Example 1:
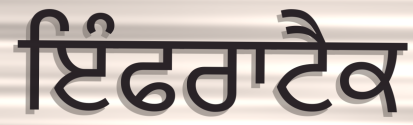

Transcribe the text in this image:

ਇੰਫਰਾਟੈਕ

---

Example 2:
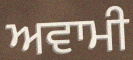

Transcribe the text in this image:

ਅਵਾਮੀ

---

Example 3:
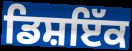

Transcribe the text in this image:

ਡਿਸ਼ਇੱਕ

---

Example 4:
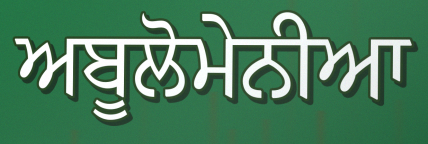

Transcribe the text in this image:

ਅਬੂਲੋਮੇਨੀਆ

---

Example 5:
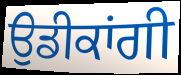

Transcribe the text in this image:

ਉਡੀਕਾਂਗੀ